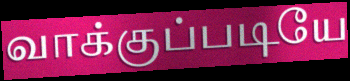
வாக்குப்படியே